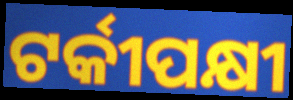
ଟର୍କୀପକ୍ଷୀ